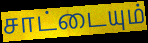
சாட்டையும்